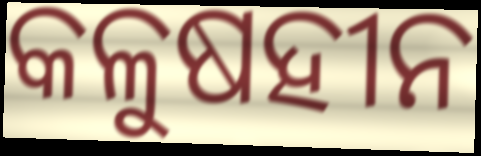
କଳୁଷହୀନ